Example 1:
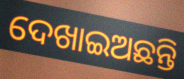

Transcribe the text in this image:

ଦେଖାଇଅଛନ୍ତି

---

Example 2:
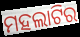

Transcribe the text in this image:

ମହଲାଟିର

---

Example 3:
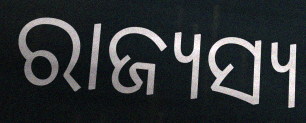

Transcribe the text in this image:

ରାଜ୍ୟସ୍ୟ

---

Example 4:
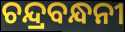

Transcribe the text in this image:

ଚନ୍ଦ୍ରବନ୍ଧନୀ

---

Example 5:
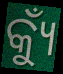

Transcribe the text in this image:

କ୍ୟୁଁ